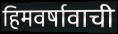
हिमवर्षावाची